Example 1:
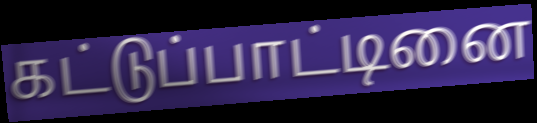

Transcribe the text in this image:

கட்டுப்பாட்டினை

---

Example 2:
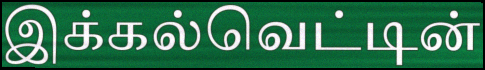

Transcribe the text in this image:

இக்கல்வெட்டின்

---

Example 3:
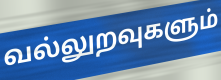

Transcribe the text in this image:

வல்லுறவுகளும்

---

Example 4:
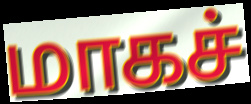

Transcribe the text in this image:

மாகச்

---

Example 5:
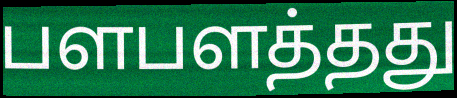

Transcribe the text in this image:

பளபளத்தது